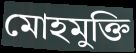
মোহমুক্তি